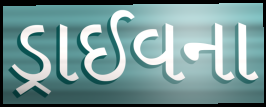
ડ્રાઈવના